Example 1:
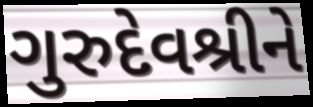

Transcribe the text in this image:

ગુરુદેવશ્રીને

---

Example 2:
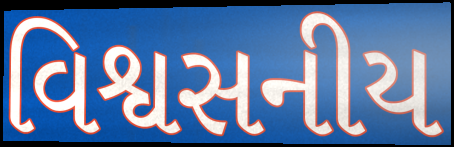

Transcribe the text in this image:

વિશ્વસનીય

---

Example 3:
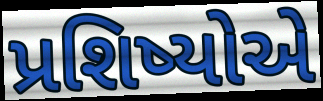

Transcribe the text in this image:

પ્રશિષ્યોએ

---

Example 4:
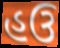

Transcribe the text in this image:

હઉ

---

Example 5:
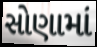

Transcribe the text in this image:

સોણામાં